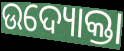
ଉଦ୍ୟୋକ୍ତା